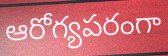
ఆరోగ్యపరంగా